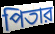
পিতার